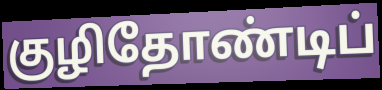
குழிதோண்டிப்